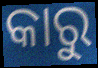
କାରୁ